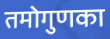
तमोगुणका